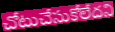
చోటుచేసుకోలేదని